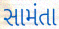
સામંતા